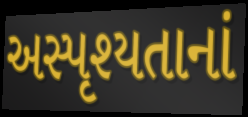
અસ્પૃશ્યતાનાં